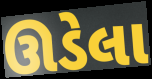
ઊડેલા